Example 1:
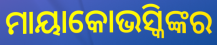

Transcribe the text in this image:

ମାୟାକୋଭସ୍କିଙ୍କର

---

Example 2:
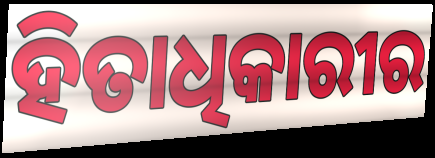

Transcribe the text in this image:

ହିତାଧିକାରୀର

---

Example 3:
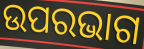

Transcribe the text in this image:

ଉପରଭାଗ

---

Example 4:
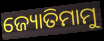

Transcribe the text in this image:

ଜ୍ୟୋତିମାମୁ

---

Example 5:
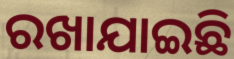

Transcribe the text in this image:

ରଖାଯାଇଛି